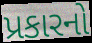
પ્રકારનો